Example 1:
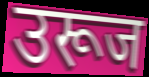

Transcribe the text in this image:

उरूज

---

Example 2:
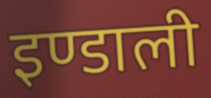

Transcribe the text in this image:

इण्डाली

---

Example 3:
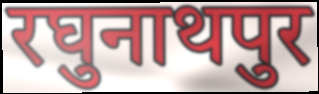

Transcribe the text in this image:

रघुनाथपुर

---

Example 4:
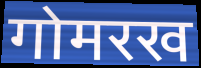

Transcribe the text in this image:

गोमरख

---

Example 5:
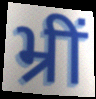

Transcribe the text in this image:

भ्रीं